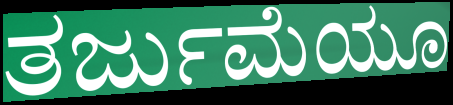
ತರ್ಜುಮೆಯೂ